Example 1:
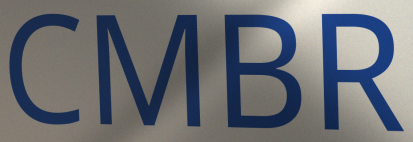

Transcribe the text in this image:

CMBR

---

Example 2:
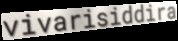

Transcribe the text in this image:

vivarisiddira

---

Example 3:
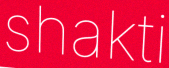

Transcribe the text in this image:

shakti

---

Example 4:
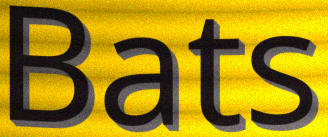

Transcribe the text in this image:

Bats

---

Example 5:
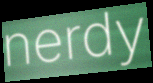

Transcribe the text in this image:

nerdy